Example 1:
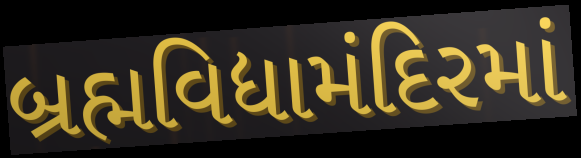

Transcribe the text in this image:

બ્રહ્મવિદ્યામંદિરમાં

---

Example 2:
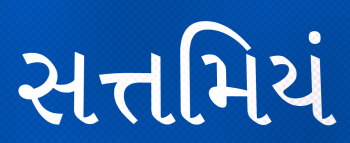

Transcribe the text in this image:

સત્તમિયં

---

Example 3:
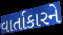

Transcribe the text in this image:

વાર્તાકારને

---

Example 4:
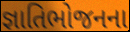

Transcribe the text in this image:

જ્ઞાતિભોજનના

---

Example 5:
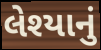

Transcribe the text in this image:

લેશ્યાનું